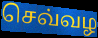
செவ்வழ